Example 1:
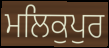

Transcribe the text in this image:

ਮਲਿਕੁਪੁਰ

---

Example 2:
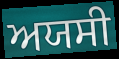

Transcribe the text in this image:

ਅਯਸੀ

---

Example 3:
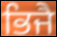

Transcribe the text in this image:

ਭਿਜੈ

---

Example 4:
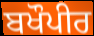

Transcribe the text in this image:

ਬਖੌਪੀਰ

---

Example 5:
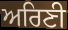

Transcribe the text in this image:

ਅਰਿਣੀ